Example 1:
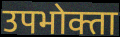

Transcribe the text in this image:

उपभोक्‍ता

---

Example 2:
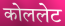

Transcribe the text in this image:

कोललेट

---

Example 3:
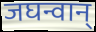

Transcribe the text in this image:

जघन्वान्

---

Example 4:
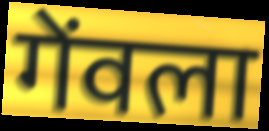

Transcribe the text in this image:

गेंवला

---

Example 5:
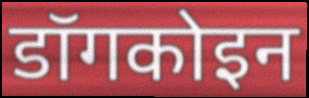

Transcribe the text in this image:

डॉगकोइन